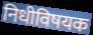
निधीविषयक